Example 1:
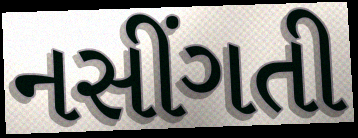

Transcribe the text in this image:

નસીંગતી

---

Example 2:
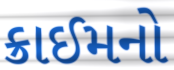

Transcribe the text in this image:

ક્રાઈમનો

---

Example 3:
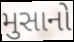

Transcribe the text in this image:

મુસાનો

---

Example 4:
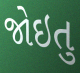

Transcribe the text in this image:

જોઇતુ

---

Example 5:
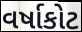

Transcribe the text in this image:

વર્ષાકોટ